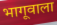
भागूवाला